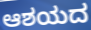
ಆಶಯದ